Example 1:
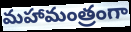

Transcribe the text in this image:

మహామంత్రంగా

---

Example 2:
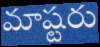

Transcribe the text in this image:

మాష్టరు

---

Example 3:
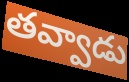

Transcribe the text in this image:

తవ్వాడు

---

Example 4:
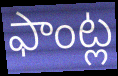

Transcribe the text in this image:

ఫాంట్ల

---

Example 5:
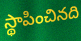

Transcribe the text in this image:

స్థాపించినది